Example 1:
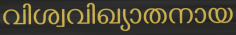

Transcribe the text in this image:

വിശ്വവിഖ്യാതനായ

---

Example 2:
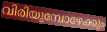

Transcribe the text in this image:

വിരിയുമ്പോഴേക്കും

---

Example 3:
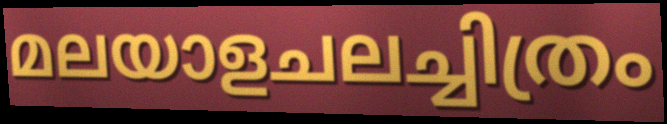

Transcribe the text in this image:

മലയാളചലച്ചിത്രം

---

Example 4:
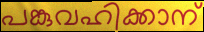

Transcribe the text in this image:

പങ്കുവഹിക്കാന്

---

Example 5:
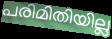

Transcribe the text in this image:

പരിമിതിയില്ല